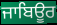
ਜਾਬਿਊਰ